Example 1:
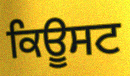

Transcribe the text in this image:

ਕਿਊਸਟ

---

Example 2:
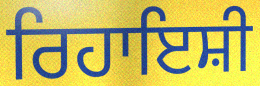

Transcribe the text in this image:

ਰਿਹਾਇਸ਼ੀ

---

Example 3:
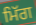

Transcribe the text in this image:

ਮਿੱਗ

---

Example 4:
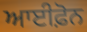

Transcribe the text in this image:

ਆਈਫ਼ੋਨ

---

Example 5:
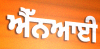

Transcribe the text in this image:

ਐੱਨਆਈ